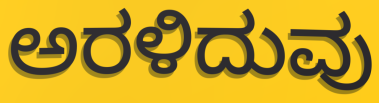
ಅರಳಿದುವು